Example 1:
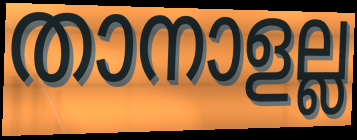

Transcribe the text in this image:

താനാളല്ല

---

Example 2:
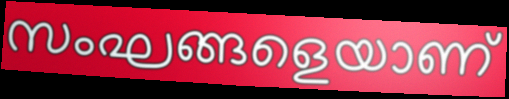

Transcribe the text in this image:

സംഘങ്ങളെയാണ്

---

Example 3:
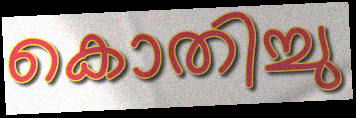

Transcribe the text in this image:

കൊതിച്ചു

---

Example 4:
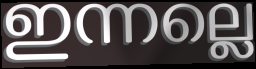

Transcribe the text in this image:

ഇന്നല്ലെ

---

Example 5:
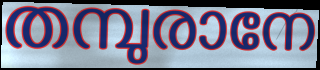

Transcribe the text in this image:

തമ്പുരാനേ